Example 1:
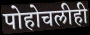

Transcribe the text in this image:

पोहोचलीही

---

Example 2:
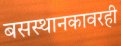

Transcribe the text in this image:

बसस्थानकावरही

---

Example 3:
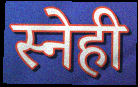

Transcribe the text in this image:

स्नेही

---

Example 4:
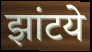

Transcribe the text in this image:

झांटये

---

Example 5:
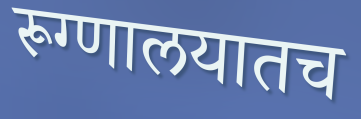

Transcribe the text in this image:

रूग्णालयातच